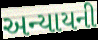
અન્યાયની